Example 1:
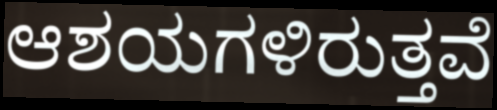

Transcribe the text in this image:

ಆಶಯಗಳಿರುತ್ತವೆ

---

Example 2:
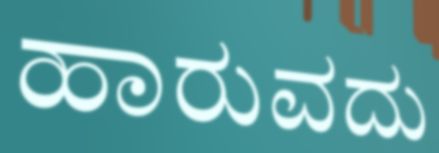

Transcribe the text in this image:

ಹಾರುವದು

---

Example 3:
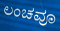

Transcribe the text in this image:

ಲಂಚವೂ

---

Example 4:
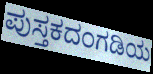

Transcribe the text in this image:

ಪುಸ್ತಕದಂಗಡಿಯ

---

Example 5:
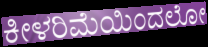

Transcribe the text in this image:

ಕೀಳರಿಮೆಯಿಂದಲೋ